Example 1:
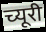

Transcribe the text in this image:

च्यूरी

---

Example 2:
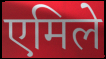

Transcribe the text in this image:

एमिले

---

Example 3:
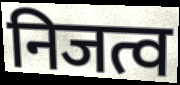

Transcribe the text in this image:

निजत्व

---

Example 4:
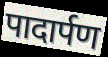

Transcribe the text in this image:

पादार्पण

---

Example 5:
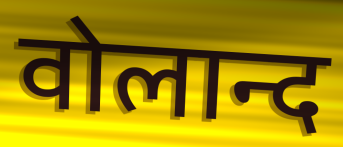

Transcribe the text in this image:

वोलान्द